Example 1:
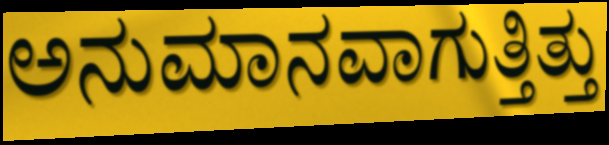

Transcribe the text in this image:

ಅನುಮಾನವಾಗುತ್ತಿತ್ತು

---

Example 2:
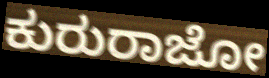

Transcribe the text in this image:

ಕುರುರಾಜೋ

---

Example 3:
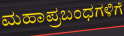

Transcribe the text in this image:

ಮಹಾಪ್ರಬಂಧಗಳಿಗೆ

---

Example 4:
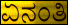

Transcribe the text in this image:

ಏನಂತಿ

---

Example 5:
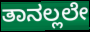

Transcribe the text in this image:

ತಾನಲ್ಲಲೇ